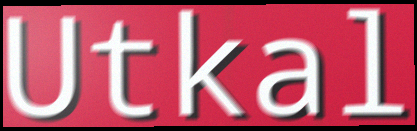
Utkal